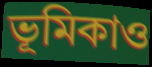
ভূমিকাও